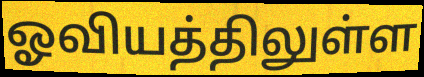
ஓவியத்திலுள்ள